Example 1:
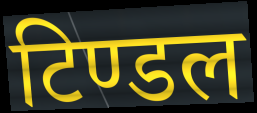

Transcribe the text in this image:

टिण्डल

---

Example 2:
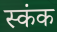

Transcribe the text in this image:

स्कंक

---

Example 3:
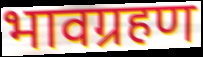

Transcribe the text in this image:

भावग्रहण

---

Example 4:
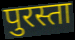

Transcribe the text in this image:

पुरस्ता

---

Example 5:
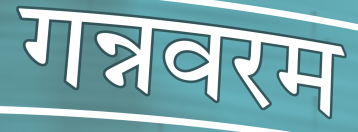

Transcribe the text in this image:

गन्नवरम